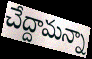
చేద్దామన్నా